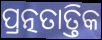
ପ୍ରତ୍ନତାତ୍ତିକ